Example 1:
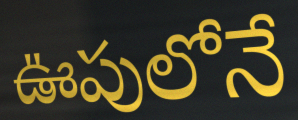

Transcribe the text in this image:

ఊపులోనే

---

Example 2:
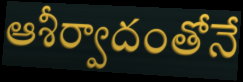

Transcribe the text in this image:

ఆశీర్వాదంతోనే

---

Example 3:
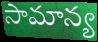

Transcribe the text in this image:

సామాన్య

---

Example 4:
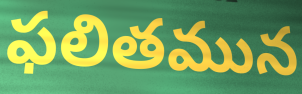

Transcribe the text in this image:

ఫలితమున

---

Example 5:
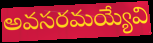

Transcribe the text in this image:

అవసరమయ్యేవి